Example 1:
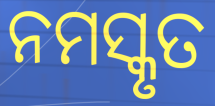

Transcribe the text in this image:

ନମସ୍କୃତ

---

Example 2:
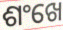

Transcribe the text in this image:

ଶଂଖେ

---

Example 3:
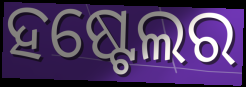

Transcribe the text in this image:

ହଷ୍ଟେଲର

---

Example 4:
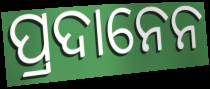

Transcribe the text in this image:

ପ୍ରଦାନେନ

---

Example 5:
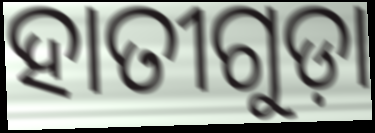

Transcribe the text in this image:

ହାତୀଗୁଡ଼ା